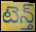
టెన్త్